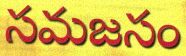
సమజసం